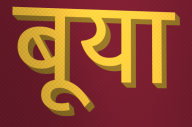
बूया